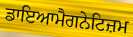
ਡਾਇਆਮੈਗਨੇਟਿਜ਼ਮ